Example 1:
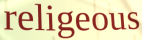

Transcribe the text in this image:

religeous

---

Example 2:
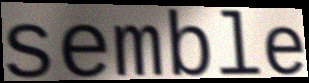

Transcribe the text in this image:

semble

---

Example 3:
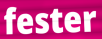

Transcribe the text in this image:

fester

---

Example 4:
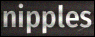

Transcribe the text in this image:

nipples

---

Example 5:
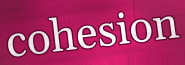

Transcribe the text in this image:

cohesion